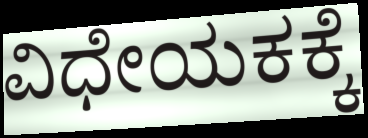
ವಿಧೇಯಕಕ್ಕೆ